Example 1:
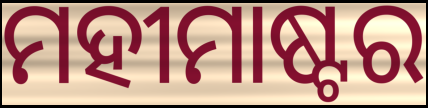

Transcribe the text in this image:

ମହୀମାଷ୍ଟର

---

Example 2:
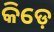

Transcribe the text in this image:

କିଡ଼େ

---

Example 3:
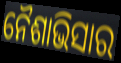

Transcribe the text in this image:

ନୈଶାଭିସାର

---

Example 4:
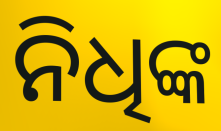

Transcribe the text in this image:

ନିଧିଙ୍କ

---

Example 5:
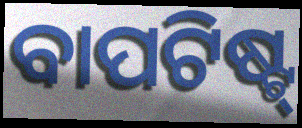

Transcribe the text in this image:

ବାପଟିଷ୍ଟ୍